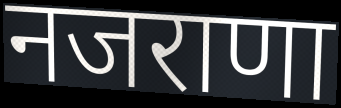
नजराणा